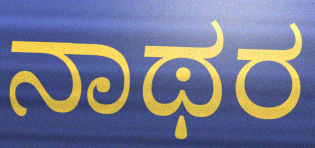
ನಾಥರ